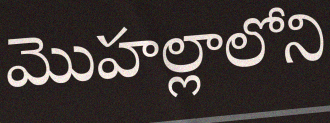
మొహల్లాలోని